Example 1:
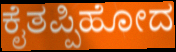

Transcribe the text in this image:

ಕೈತಪ್ಪಿಹೋದ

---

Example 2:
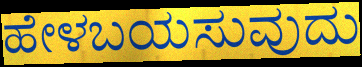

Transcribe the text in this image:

ಹೇಳಬಯಸುವುದು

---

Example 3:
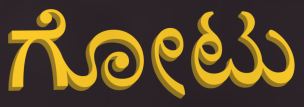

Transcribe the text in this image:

ಗೋಟು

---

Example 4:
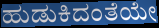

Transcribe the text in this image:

ಹುಡುಕಿದಂತೆಯೇ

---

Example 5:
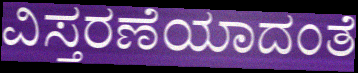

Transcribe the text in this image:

ವಿಸ್ತರಣೆಯಾದಂತೆ